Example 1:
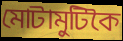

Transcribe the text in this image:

মোটামুটিকৈ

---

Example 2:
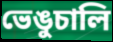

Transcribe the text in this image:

ভেঙুচালি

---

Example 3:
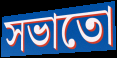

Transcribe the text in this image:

সভাতো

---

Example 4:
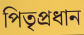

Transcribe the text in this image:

পিতৃপ্ৰধান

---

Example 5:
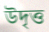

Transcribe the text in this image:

উদৃত্ত